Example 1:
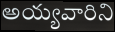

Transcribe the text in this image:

అయ్యవారిని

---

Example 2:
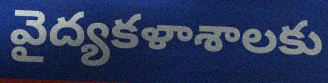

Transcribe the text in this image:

వైద్యకళాశాలకు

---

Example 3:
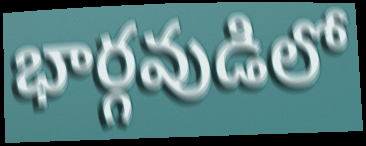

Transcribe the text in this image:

భార్గవుడిలో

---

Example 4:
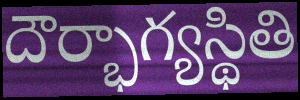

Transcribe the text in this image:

దౌర్భాగ్యస్థితి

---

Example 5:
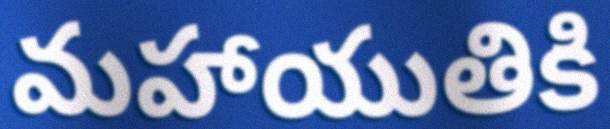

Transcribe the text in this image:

మహాయుతికి